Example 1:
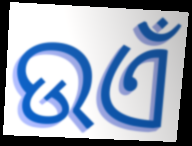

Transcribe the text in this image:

ଉଏଁ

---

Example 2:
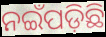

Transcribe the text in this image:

ନଇଁପଡ଼ିଛି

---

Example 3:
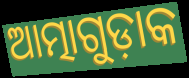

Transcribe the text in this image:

ଆତ୍ମାଗୁଡ଼ାକ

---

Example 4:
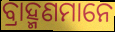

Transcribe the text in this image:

ବ୍ରାହ୍ମଣମାନେ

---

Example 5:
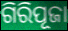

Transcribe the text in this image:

ଗିରିପୂଜା